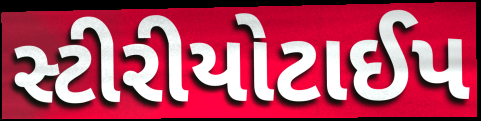
સ્ટીરીયોટાઈપ